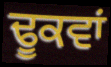
ਢੂਕਵਾਂ